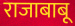
राजाबाबू